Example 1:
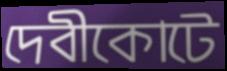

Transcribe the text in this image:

দেবীকোটে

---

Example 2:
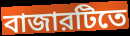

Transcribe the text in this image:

বাজারটিতে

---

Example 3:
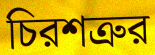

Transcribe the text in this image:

চিরশত্রুর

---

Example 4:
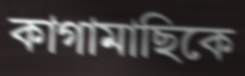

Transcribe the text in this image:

কাগামাছিকে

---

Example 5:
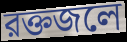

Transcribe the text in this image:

রক্তজলে